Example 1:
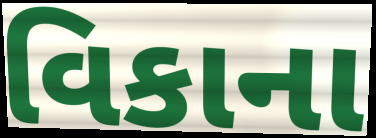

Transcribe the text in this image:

વિકાના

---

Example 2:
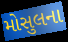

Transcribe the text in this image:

મોસુલના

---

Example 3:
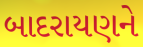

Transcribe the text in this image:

બાદરાયણને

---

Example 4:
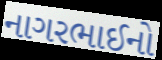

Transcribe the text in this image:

નાગરભાઈનો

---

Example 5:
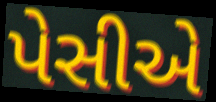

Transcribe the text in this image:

પેસીએ